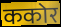
ककोर